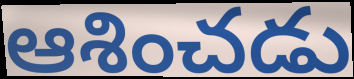
ఆశించడు